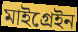
মাইগ্ৰেইন